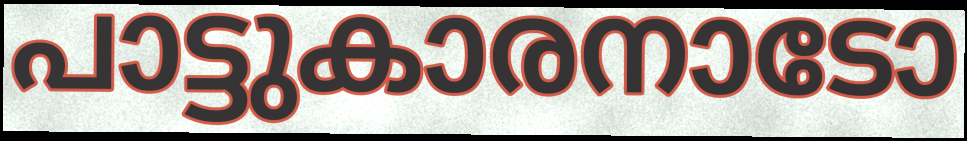
പാട്ടുകാരനാടോ